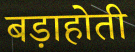
बड़ाहोती